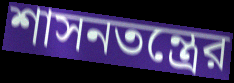
শাসনতন্ত্রের